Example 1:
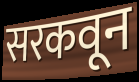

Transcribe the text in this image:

सरकवून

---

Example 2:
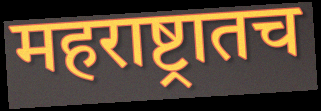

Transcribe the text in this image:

महराष्ट्रातच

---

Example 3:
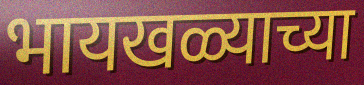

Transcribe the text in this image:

भायखळ्याच्या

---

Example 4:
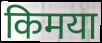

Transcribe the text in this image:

किमया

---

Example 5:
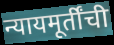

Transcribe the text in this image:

न्यायमूर्तींची